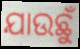
ଯାଉଛୁଁ